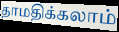
தாமதிக்கலாம்